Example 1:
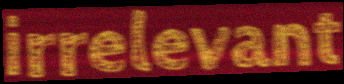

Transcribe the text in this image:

irrelevant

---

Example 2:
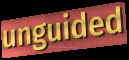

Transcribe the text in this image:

unguided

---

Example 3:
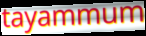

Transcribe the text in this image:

tayammum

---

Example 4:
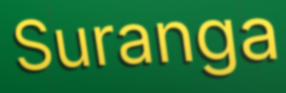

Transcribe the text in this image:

Suranga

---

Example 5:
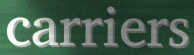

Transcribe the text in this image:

carriers